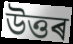
উত্তৰ